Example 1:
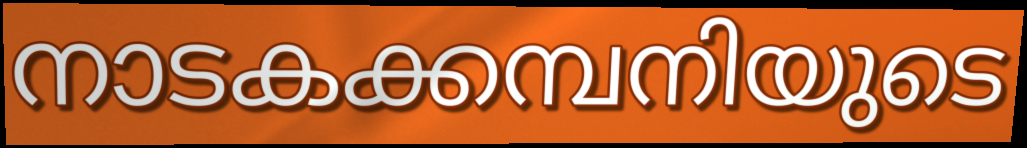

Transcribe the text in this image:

നാടകക്കമ്പനിയുടെ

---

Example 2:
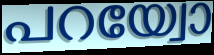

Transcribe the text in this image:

പറയ്വോ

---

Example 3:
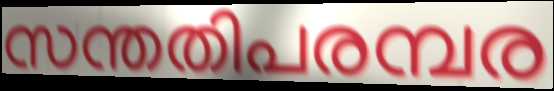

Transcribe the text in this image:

സന്തതിപരമ്പര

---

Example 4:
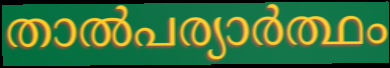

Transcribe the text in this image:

താൽപര്യാർത്ഥം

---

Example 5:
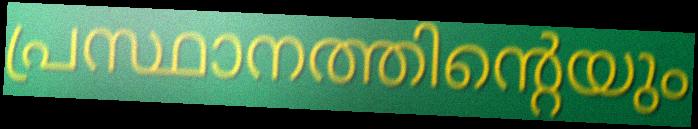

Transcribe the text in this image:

പ്രസ്ഥാനത്തിന്റെയും